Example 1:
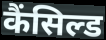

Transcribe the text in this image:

कैंसिल्ड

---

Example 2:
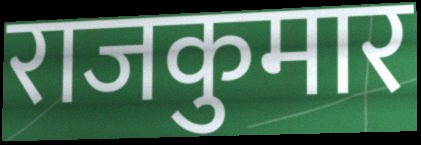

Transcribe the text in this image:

राजकुमार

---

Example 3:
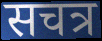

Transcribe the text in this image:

सचत्र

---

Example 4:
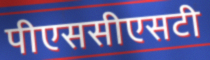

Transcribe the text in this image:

पीएससीएसटी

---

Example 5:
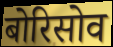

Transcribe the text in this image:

बोरिसोव